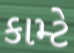
કામ્ટે